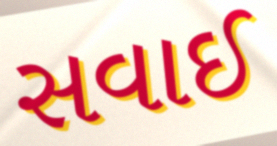
સવાઈ